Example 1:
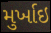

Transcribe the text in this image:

મુર્ખાઇ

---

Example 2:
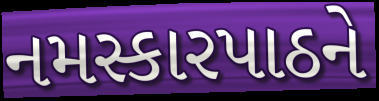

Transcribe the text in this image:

નમસ્કારપાઠને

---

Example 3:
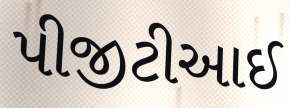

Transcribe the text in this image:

પીજીટીઆઈ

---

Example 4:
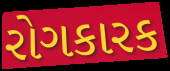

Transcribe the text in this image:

રોગકારક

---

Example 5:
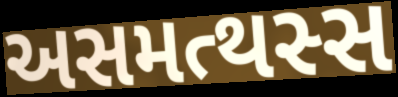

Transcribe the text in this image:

અસમત્થસ્સ